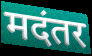
मदंतर